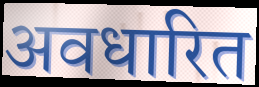
अवधारित